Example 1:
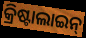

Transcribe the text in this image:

କ୍ରିଷ୍ଟାଲାଇନ୍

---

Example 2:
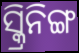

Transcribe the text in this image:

ସ୍କ୍ରିନିଙ୍ଗ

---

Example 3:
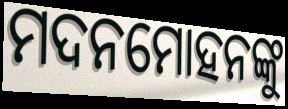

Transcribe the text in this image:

ମଦନମୋହନଙ୍କୁ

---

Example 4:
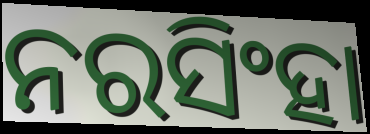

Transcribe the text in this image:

ନରସିଂହା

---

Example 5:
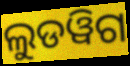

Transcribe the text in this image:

ଲୁଡୱିଗ